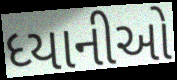
ધ્યાનીઓ